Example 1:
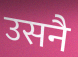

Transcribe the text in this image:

उसनै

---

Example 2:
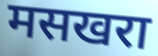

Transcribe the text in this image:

मसखरा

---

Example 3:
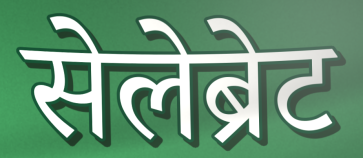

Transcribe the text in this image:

सेलेब्रेट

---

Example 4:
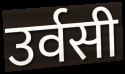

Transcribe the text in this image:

उर्वसी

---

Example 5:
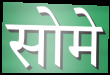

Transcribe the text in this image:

सोमे